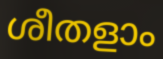
ശീതളാം